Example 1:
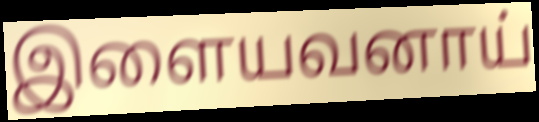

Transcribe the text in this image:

இளையவனாய்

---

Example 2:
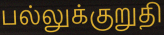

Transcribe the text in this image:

பல்லுக்குறுதி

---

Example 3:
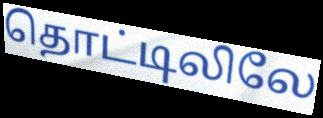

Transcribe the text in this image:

தொட்டிலிலே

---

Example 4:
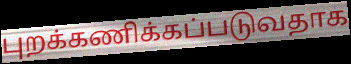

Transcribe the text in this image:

புறக்கணிக்கப்படுவதாக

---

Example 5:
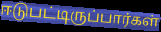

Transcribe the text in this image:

ஈடுபட்டிருப்பார்கள்